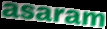
asaram